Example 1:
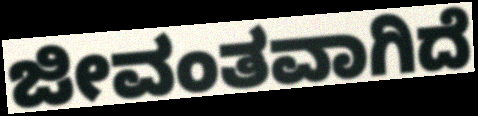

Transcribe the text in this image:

ಜೀವಂತವಾಗಿದೆ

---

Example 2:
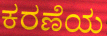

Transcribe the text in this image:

ಕರಣೆಯ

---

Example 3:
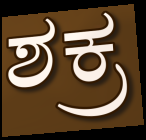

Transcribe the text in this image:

ಶಕ್ರ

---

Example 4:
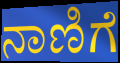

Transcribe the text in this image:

ನಾಣಿಗೆ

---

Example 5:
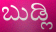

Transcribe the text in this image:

ಬುಡ್ಲಿ